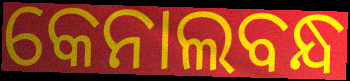
କେନାଲବନ୍ଧ